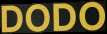
DODO